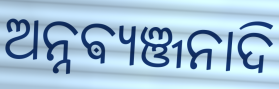
ଅନ୍ନଵ୍ୟଞ୍ଜନାଦି